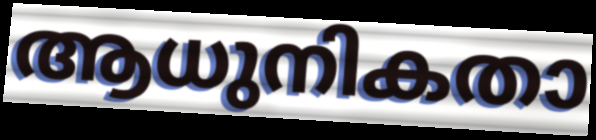
ആധുനികതാ